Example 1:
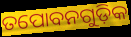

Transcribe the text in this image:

ତପୋବନଗୁଡ଼ିକ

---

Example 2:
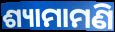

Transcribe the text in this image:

ଶ୍ୟାମାମଣି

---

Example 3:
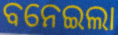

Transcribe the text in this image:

ବନେଇଲା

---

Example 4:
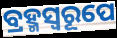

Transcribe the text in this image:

ବ୍ରହ୍ମସ୍ୱରୂପେ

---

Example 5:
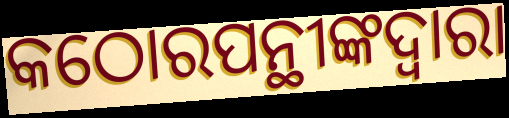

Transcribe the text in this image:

କଠୋରପନ୍ଥୀଙ୍କଦ୍ୱାରା